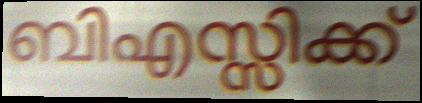
ബിഎസ്സിക്ക്